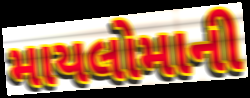
માયલોમાની